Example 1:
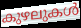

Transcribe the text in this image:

കുഴലുകൾ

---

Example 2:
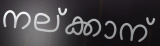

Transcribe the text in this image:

നല്ക്കാന്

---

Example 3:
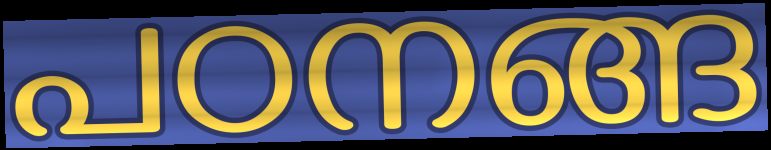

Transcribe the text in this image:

പഠനങ്ങ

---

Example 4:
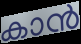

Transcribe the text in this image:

കാൻ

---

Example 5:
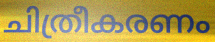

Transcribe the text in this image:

ചിത്രീകരണം